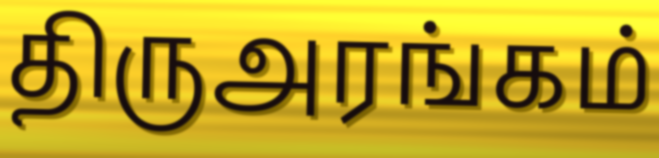
திருஅரங்கம்